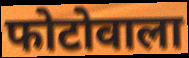
फोटोवाला